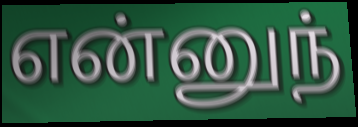
என்னுந்